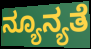
ನ್ಯೂನ್ಯತೆ